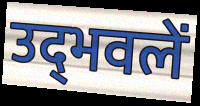
उद्‍भवलें